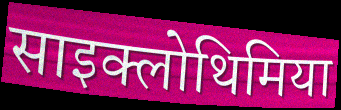
साइक्लोथिमिया